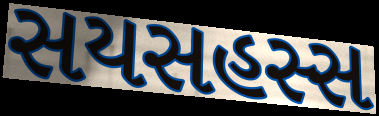
સયસહસ્સ